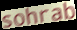
sohrab